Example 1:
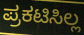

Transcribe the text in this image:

ಪ್ರಕಟಿಸಿಲ್ಲ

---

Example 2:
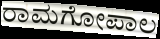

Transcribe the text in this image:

ರಾಮಗೋಪಾಲ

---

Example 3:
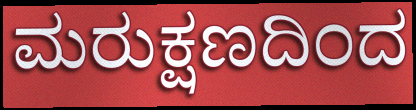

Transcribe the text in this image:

ಮರುಕ್ಷಣದಿಂದ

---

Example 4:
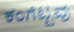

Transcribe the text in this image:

ಕಂಗೆಟ್ಟವು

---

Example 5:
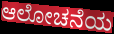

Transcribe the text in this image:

ಆಲೋಚನೆಯ